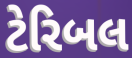
ટેરિબલ